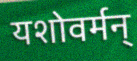
यशोवर्मन्